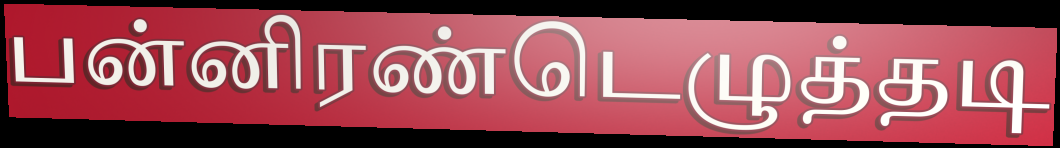
பன்னிரண்டெழுத்தடி